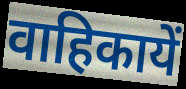
वाहिकायें